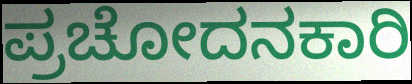
ಪ್ರಚೋದನಕಾರಿ